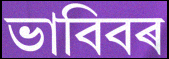
ভাবিবৰ